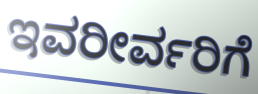
ಇವರೀರ್ವರಿಗೆ